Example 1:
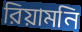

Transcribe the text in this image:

রিয়ামনি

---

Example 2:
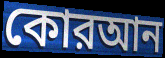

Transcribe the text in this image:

কোরআন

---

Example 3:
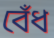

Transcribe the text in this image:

বেঁধ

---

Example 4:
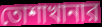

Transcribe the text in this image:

তোশাখানার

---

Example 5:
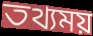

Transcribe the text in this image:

তথ্যময়